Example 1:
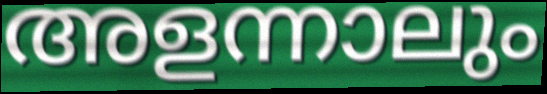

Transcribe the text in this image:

അളന്നാലും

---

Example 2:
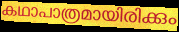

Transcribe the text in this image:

കഥാപാത്രമായിരിക്കും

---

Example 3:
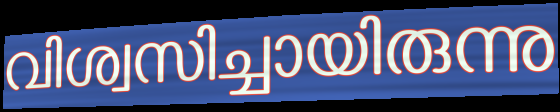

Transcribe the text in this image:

വിശ്വസിച്ചായിരുന്നു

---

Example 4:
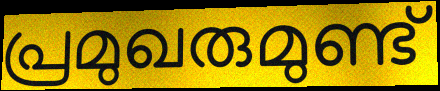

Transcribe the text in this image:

പ്രമുഖരുമുണ്ട്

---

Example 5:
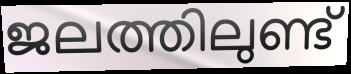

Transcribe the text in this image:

ജലത്തിലുണ്ട്